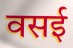
वसई